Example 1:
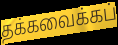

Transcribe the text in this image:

தக்கவைக்கப்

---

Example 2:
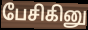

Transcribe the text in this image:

பேசிகினு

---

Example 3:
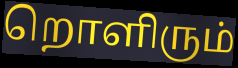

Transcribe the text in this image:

றொளிரும்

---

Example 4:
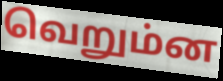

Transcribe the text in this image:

வெறும்ன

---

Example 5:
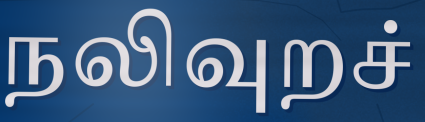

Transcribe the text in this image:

நலிவுறச்